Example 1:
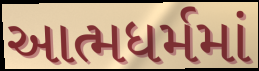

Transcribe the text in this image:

આત્મધર્મમાં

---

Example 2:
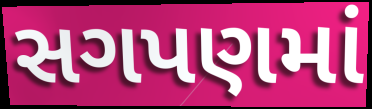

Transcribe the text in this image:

સગપણમાં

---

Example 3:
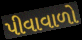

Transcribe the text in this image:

પીવાવાળો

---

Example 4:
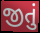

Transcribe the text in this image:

જીતું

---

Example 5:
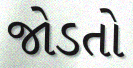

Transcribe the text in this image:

જોડતો